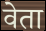
वेता